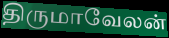
திருமாவேலன்